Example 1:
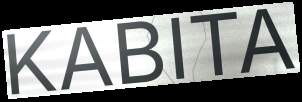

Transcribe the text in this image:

KABITA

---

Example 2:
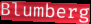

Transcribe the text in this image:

Blumberg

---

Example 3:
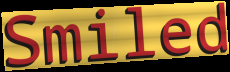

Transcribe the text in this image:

Smiled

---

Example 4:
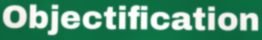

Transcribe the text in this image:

Objectification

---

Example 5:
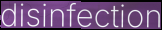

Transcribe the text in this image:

disinfection